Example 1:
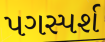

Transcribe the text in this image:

પગસ્પર્શ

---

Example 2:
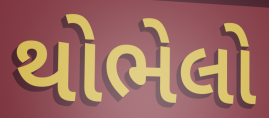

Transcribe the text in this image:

થોભેલો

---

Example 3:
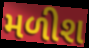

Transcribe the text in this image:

મળીશ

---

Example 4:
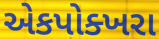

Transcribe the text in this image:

એકપોક્ખરા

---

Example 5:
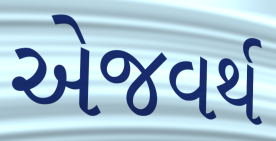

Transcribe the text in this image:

એજવર્થ